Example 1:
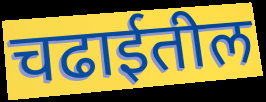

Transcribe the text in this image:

चढाईतील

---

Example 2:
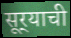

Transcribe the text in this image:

सूर्याची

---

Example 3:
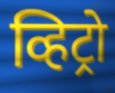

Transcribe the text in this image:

व्हिट्रो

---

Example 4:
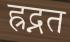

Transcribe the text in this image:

ह्रद्नत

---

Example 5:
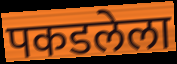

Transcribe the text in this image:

पकडलेला